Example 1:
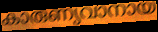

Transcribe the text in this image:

കാരുണ്യവാനായ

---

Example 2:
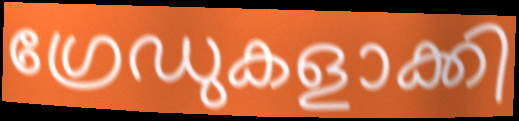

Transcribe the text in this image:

ഗ്രേഡുകളാക്കി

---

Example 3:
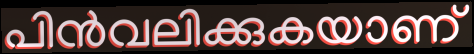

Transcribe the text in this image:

പിൻവലിക്കുകയാണ്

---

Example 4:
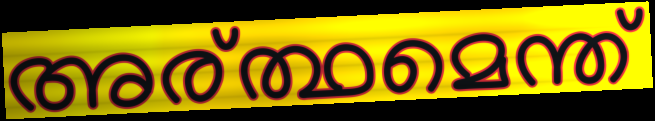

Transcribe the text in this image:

അര്ത്ഥമെന്ത്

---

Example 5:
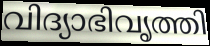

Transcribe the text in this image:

വിദ്യാഭിവൃത്തി